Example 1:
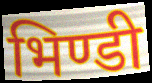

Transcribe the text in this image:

भिण्डी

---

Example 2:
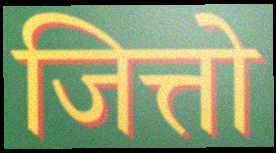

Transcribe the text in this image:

जित्तो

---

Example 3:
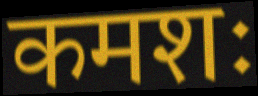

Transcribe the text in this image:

कमशः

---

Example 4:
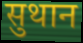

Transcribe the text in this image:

सुथान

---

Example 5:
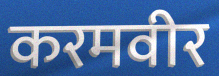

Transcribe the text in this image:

करमवीर